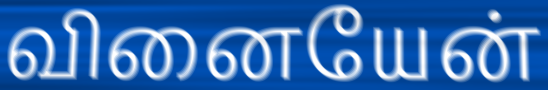
வினையேன்